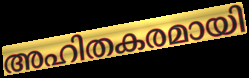
അഹിതകരമായി